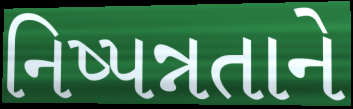
નિષ્પન્નતાને